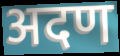
अदण